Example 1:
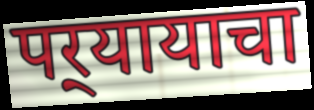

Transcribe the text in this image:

पर्यायाचा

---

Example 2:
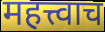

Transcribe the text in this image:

महत्त्वाच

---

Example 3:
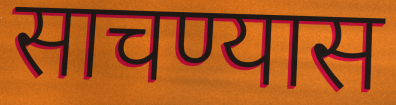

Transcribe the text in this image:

साचण्यास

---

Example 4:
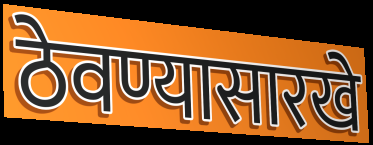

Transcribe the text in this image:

ठेवण्यासारखे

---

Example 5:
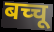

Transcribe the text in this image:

बच्चू